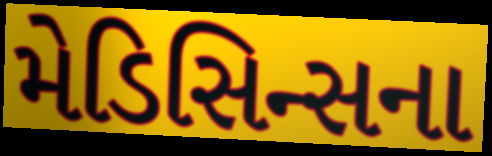
મેડિસિન્સના